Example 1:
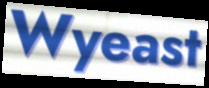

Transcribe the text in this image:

Wyeast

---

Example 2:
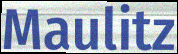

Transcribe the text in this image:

Maulitz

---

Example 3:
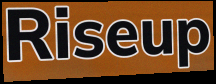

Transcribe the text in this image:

Riseup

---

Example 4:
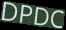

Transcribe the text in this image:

DPDC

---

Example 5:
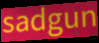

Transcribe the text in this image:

sadgun